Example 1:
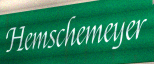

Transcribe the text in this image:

Hemschemeyer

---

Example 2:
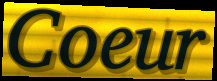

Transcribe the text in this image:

Coeur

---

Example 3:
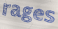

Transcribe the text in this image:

rages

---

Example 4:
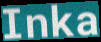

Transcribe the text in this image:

Inka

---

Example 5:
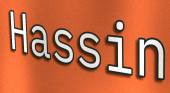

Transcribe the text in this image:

Hassin